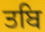
ਤਬਿ